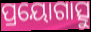
ପ୍ରୟୋଗାତ୍ସୁ